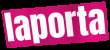
laporta